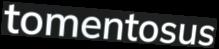
tomentosus